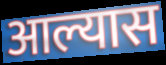
आल्यास